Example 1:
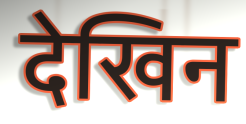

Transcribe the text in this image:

देखिन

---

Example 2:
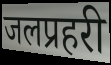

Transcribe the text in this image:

जलप्रहरी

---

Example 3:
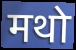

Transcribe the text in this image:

मथो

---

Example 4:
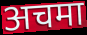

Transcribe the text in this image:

अचमा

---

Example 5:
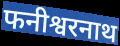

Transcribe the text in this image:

फनीश्वरनाथ